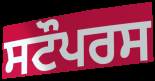
ਸਟੌਪਰਸ